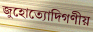
জুহোত্যোদিগণীয়